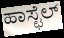
ಹಾಸ್ಟೆಲ್